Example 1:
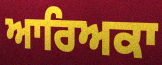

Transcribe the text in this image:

ਆਰਿਅਕਾ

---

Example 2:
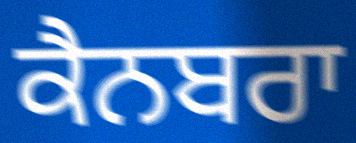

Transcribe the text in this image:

ਕੈਨਬਰਾ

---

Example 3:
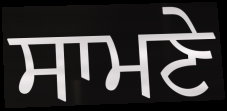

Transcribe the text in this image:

ਸਾਮਣੇ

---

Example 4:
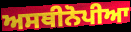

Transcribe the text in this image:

ਅਸਥੀਨੋਪੀਆ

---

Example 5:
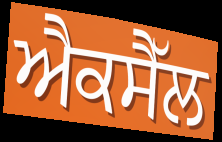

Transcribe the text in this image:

ਐਕਸੈੱਲ